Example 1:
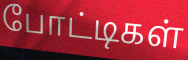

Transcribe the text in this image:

போட்டிகள்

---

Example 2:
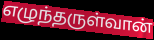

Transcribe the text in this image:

எழுந்தருள்வான்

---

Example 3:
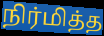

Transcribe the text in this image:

நிர்மித்த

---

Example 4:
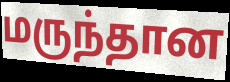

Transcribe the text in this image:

மருந்தான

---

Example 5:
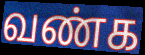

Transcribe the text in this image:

வண்க